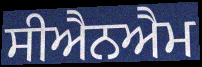
ਸੀਐਨਐਮ